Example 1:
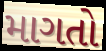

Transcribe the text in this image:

માગતો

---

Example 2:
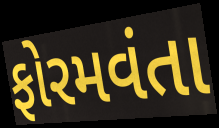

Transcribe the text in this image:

ફોરમવંતા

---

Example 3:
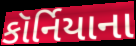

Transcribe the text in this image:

કૉર્નિયાના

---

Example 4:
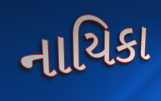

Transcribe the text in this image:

નાયિકા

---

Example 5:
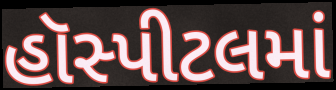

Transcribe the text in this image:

હૉસ્પીટલમાં